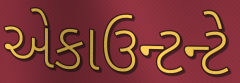
એકાઉન્ટન્ટે